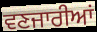
ਵਣਜਾਰੀਆਂ